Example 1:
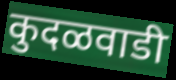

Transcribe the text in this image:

कुदळवाडी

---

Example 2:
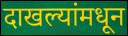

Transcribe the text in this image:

दाखल्यांमधून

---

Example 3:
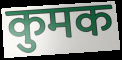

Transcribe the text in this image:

कुमक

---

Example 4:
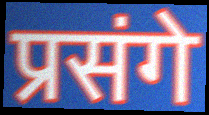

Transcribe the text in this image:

प्रसंगे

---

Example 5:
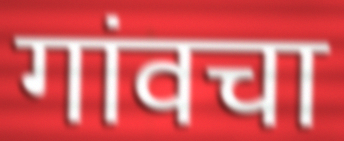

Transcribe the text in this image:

गांवचा